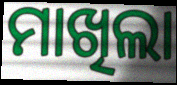
ମାଖିଲା